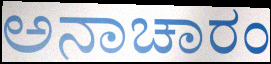
ಅನಾಚಾರಂ